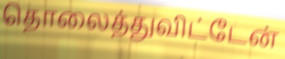
தொலைத்துவிட்டேன்